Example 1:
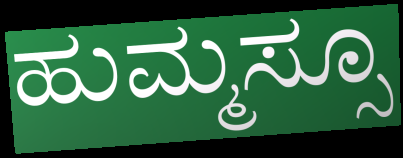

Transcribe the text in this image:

ಹುಮ್ಮಸ್ಸೂ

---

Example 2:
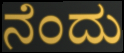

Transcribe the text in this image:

ನೆಂದು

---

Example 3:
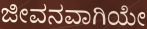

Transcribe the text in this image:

ಜೀವನವಾಗಿಯೇ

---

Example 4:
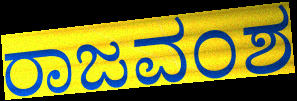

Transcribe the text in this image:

ರಾಜವಂಶ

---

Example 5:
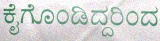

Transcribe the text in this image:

ಕೈಗೊಂಡಿದ್ದರಿಂದ